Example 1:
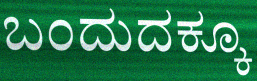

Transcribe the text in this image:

ಬಂದುದಕ್ಕೂ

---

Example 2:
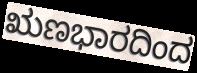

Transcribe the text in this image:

ಋಣಭಾರದಿಂದ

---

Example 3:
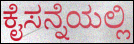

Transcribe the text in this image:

ಕೈಸನ್ನೆಯಲ್ಲಿ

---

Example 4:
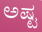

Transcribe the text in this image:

ಅಷ್ಟ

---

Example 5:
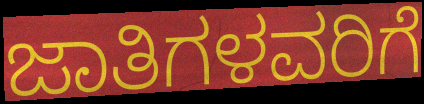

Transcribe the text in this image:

ಜಾತಿಗಳವರಿಗೆ